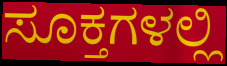
ಸೂಕ್ತಗಳಲ್ಲಿ